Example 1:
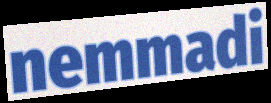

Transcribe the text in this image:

nemmadi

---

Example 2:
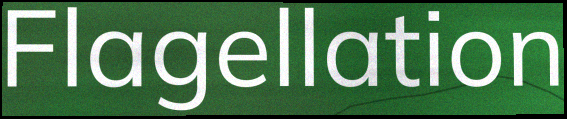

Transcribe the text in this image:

Flagellation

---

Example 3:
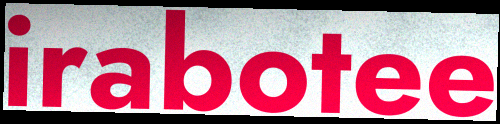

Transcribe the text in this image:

irabotee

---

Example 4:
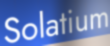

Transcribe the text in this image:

Solatium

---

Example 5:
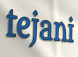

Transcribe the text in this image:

tejani